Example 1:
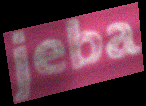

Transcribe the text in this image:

jeba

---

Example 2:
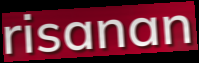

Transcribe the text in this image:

risanan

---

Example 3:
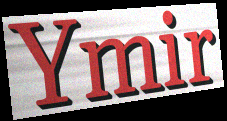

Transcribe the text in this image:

Ymir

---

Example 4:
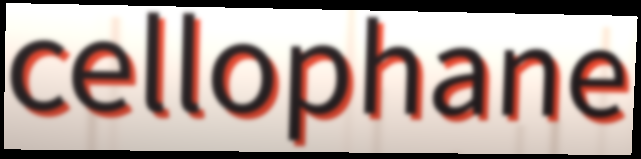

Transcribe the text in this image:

cellophane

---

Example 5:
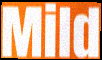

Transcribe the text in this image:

Mild